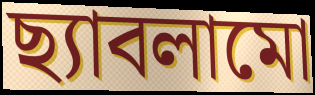
ছ্যাবলামো